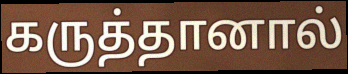
கருத்தானால்